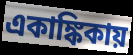
একাঙ্কিকায়